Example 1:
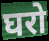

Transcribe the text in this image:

घरो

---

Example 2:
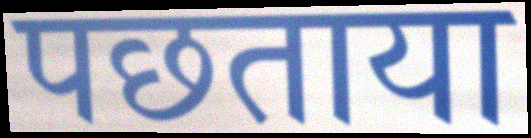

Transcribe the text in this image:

पछताया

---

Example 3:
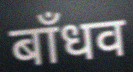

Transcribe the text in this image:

बाँधव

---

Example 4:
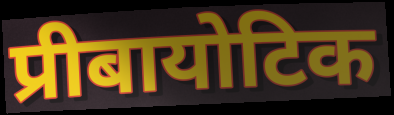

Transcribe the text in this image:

प्रीबायोटिक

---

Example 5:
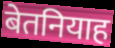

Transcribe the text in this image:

बेतनियाह